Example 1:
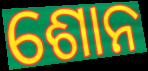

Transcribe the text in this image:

ଶୋନ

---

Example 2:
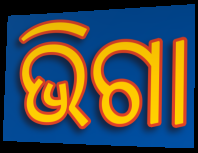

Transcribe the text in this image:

ଭିଗା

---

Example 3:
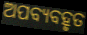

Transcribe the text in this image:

ଅପବ୍ୟବହୃତ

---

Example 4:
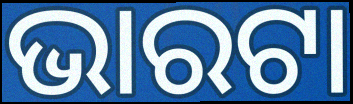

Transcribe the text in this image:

ଭାରଟା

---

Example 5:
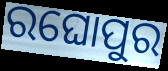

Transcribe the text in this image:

ରଘୋପୁର